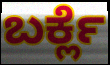
ಬರ್ಕ್ಲೆ